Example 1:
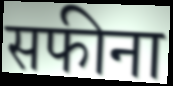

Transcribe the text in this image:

सफीना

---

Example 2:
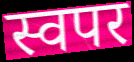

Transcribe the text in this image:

स्वपर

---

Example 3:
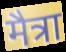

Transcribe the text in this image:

मैत्रा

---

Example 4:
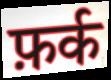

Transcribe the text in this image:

फ़र्क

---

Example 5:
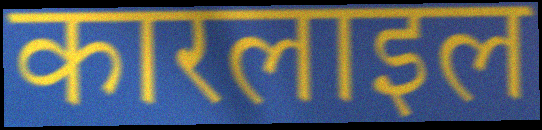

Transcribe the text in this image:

कारलाइल